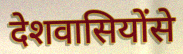
देशवासियोंसे